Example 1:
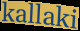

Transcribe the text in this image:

kallaki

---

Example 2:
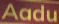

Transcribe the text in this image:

Aadu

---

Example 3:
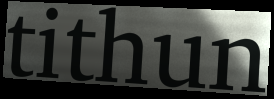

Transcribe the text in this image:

tithun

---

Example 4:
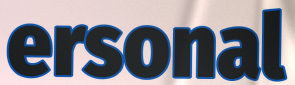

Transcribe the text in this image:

ersonal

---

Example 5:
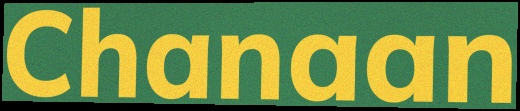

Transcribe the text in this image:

Chanaan